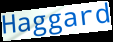
Haggard